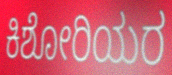
ಕಿಶೋರಿಯರ